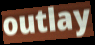
outlay